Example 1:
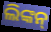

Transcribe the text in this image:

ଲିଙ୍କନ୍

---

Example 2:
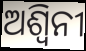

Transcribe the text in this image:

ଅଶ୍ୱିନୀ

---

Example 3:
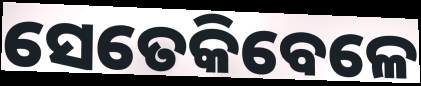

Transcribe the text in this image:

ସେତେକିବେଳେ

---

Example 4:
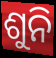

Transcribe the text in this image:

ଶୁନି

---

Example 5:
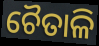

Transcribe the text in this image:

ଚୈତାଳି